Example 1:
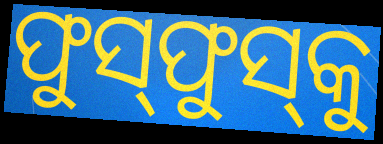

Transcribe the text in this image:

ଫୁସ୍‌ଫୁସ୍‌କୁ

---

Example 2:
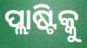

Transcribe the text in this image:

ପ୍ଲାଷ୍ଟିକ୍କୁ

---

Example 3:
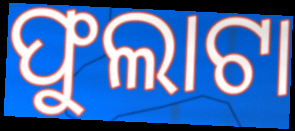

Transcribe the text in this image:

ଫୁଲାଟା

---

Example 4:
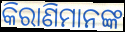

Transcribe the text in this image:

କିରାଣିମାନଙ୍କ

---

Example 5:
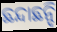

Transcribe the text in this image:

ଛନ୍ଦାଛନ୍ଦି